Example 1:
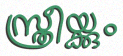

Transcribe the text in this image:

സ്ത്രീയ്ക്കും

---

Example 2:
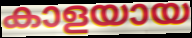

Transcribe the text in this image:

കാളയായ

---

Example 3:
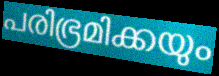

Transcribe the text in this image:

പരിഭ്രമിക്കയും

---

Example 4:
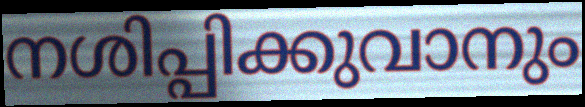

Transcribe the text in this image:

നശിപ്പിക്കുവാനും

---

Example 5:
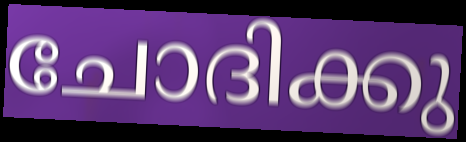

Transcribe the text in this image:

ചോദിക്കു